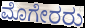
ಮೊಗೇರರು